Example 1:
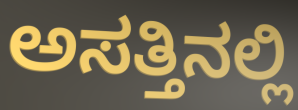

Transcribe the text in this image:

ಅಸತ್ತಿನಲ್ಲಿ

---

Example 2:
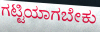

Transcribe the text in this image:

ಗಟ್ಟಿಯಾಗಬೇಕು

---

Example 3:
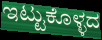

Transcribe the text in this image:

ಇಟ್ಟುಕೊಳ್ಳದ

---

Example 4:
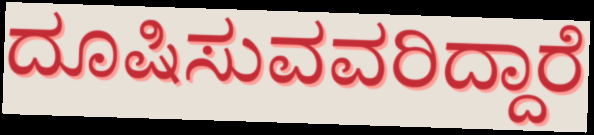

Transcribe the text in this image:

ದೂಷಿಸುವವರಿದ್ದಾರೆ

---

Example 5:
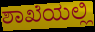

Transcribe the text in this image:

ಶಾಖೆಯಲ್ಲಿ